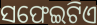
ସଫେଇଟିଏ